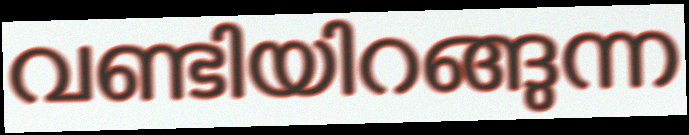
വണ്ടിയിറങ്ങുന്ന